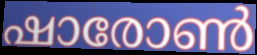
ഷാരോൺ